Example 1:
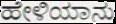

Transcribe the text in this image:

ಹೇಳಿಯಾನು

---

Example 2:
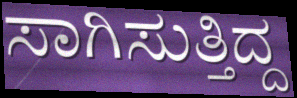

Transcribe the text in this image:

ಸಾಗಿಸುತ್ತಿದ್ದ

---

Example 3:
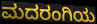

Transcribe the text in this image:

ಮದರಂಗಿಯ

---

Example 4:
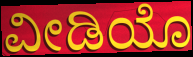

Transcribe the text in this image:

ವೀಡಿಯೊ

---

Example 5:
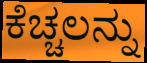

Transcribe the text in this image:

ಕೆಚ್ಚಲನ್ನು